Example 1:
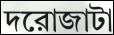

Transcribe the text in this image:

দরোজাটা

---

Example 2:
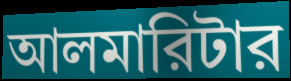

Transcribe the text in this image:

আলমারিটার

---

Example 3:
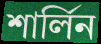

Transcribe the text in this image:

শার্লিন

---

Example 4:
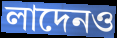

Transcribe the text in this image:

লাদেনও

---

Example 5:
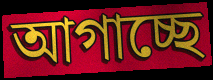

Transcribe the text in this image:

আগাচ্ছে